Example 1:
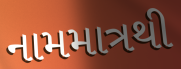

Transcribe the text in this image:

નામમાત્રથી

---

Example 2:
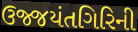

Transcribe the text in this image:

ઉજ્જયંતગિરિની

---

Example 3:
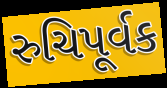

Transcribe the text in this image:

રુચિપૂર્વક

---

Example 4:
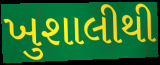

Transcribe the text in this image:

ખુશાલીથી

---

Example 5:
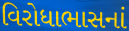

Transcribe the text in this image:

વિરોધાભાસનાં